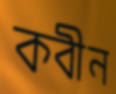
কবীন